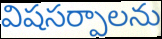
విషసర్పాలను